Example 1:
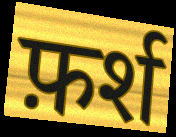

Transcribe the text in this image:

फ़र्श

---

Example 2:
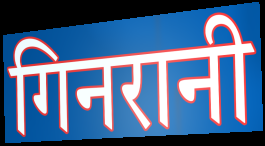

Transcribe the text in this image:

गिनरानी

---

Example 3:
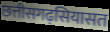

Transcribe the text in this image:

छत्तीसगढ़सियासत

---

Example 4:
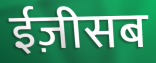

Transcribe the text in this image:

ईज़ीसब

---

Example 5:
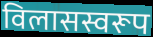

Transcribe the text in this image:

विलासस्वरूप